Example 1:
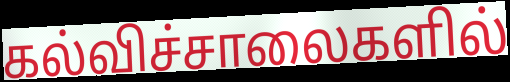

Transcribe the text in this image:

கல்விச்சாலைகளில்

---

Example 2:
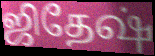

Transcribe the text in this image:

ஜிதேஷ்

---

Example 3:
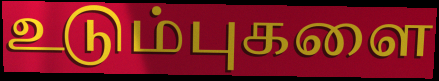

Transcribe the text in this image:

உடும்புகளை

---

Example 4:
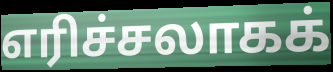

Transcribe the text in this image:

எரிச்சலாகக்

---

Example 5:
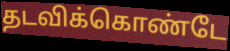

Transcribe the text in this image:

தடவிக்கொண்டே